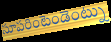
సూపరింటెండెంట్ను